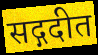
सद्गदीत